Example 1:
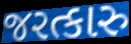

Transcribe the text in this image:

જરત્કારુ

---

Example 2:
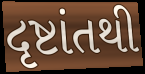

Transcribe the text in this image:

દૃષ્ટાંતથી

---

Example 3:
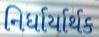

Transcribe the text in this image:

નિર્ધાર્યાર્થક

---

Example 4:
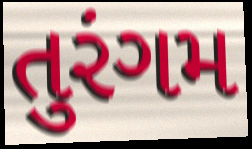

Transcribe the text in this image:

તુરંગમ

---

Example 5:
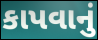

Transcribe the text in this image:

કાપવાનું